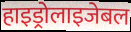
हाइड्रोलाइजेबल